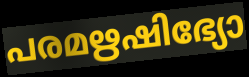
പരമഋഷിഭ്യോ